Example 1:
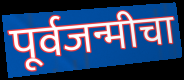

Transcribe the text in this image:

पूर्वजन्मीचा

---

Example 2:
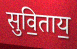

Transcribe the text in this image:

सुवि॒ताय॒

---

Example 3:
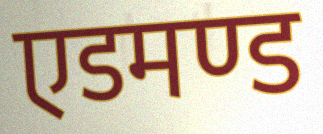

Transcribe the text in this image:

एडमण्ड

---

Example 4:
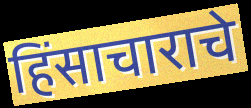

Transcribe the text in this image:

हिंसाचाराचे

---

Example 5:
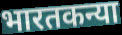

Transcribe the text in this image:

भारतकन्या